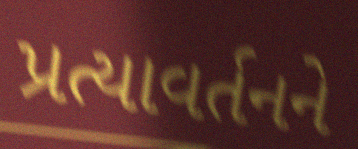
પ્રત્યાવર્તનને